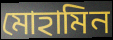
মোহামিন